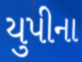
યુપીના